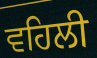
ਵਹਿਲੀ